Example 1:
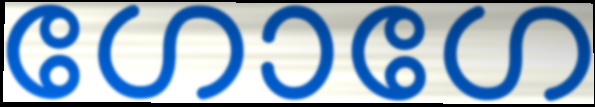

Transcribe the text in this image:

ഗോഗേ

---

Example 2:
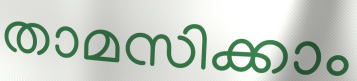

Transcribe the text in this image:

താമസിക്കാം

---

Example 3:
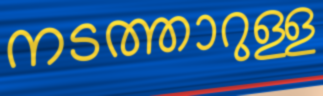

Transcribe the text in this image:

നടത്താറുള്ള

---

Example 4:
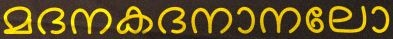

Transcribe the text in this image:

മദനകദനാനലോ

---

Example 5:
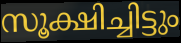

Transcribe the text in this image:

സൂക്ഷിച്ചിട്ടും